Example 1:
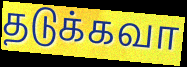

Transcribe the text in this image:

தடுக்கவா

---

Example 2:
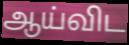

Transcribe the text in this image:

ஆய்விட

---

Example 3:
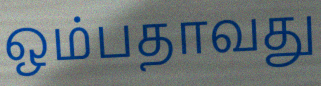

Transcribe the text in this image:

ஒம்பதாவது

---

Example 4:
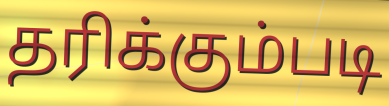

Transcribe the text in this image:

தரிக்கும்படி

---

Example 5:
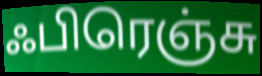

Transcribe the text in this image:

ஃபிரெஞ்சு